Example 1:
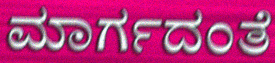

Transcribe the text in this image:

ಮಾರ್ಗದಂತೆ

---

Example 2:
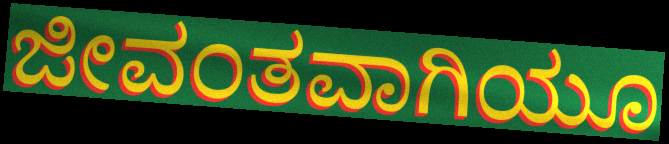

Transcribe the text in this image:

ಜೀವಂತವಾಗಿಯೂ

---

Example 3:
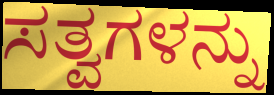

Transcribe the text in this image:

ಸತ್ವಗಳನ್ನು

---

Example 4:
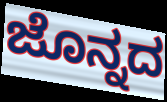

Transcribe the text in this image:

ಜೊನ್ನದ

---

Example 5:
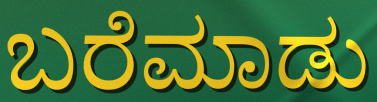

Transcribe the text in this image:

ಬರೆಮಾಡು